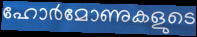
ഹോർമോണുകളുടെ